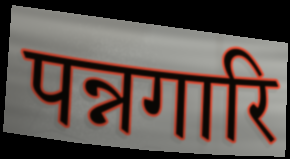
पन्नगारि